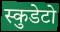
स्कुडेटो